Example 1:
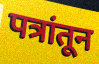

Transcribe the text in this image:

पत्रांतून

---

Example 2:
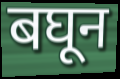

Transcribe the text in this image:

बघून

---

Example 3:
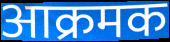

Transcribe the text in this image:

आक्रमक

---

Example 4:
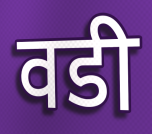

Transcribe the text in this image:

वडी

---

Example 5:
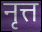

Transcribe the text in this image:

नृत्त